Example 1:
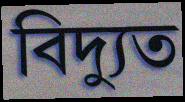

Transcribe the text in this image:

বিদ্যুত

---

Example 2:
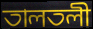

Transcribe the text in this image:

তালতলী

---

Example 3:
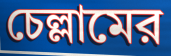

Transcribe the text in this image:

চেল্লামের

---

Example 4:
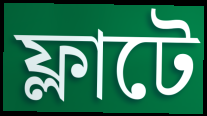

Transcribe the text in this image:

ফ্লাটে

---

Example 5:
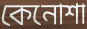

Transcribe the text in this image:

কেনোশা